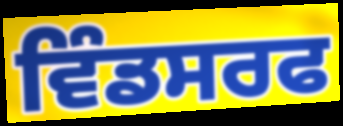
ਵਿੰਡਸਰਫ